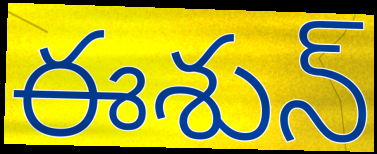
ఈశున్